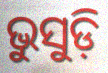
ଭୁସୁଡ଼ି